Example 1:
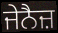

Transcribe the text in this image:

ਜੇਨੈਜ਼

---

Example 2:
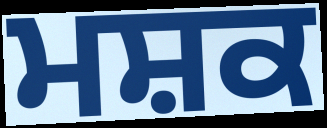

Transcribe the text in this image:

ਮਸ਼ਕ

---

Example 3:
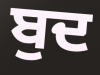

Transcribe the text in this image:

ਬੁਦ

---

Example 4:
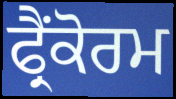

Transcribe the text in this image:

ਫ੍ਰੈਂਕੋਰਮ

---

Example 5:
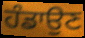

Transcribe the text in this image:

ਹੰਡਾਉਣ